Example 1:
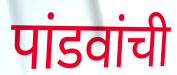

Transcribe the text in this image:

पांडवांची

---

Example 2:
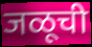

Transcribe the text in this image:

जळूची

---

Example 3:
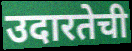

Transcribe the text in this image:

उदारतेची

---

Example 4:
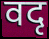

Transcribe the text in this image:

वदृ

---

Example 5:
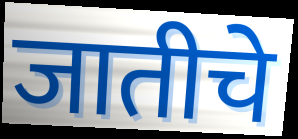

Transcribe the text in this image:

जातीचे